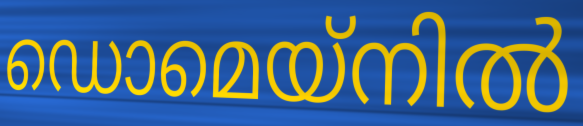
ഡൊമെയ്നിൽ